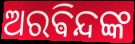
ଅରଵିନ୍ଦଙ୍କ